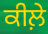
ਕੀਲ਼ੇ